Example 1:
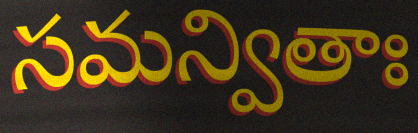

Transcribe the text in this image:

సమన్వితాః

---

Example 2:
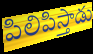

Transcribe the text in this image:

పిలిపిస్తాడు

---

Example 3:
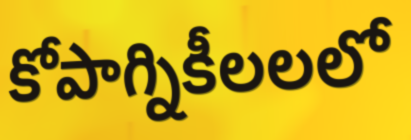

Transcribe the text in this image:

కోపాగ్నికీలలలో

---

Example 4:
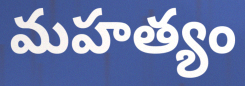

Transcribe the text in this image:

మహత్యం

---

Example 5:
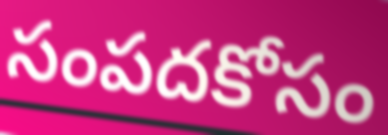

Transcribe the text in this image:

సంపదకోసం